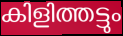
കിളിത്തട്ടും